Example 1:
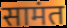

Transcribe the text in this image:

सामंत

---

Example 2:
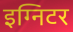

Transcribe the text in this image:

इग्निटर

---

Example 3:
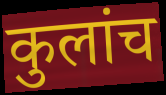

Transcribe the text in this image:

कुलांच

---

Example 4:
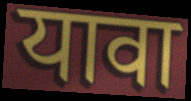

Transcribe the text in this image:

यावा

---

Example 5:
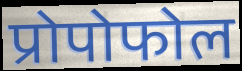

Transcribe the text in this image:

प्रोपोफोल